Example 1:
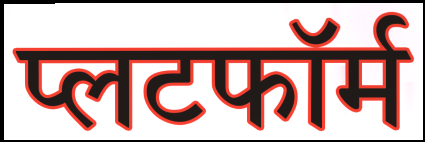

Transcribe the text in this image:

प्लटफॉर्म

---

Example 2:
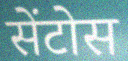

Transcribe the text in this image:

सेंटोस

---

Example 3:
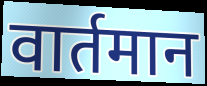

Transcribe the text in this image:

वार्तमान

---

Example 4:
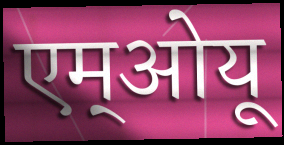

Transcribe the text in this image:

एम्ओयू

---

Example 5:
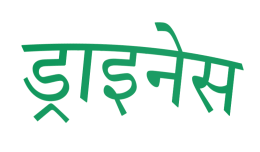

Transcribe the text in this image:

ड्राइनेस